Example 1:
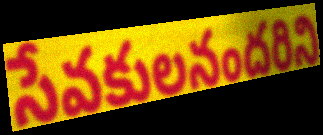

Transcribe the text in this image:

సేవకులనందరిని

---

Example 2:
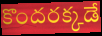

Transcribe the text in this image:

కొందరక్కడే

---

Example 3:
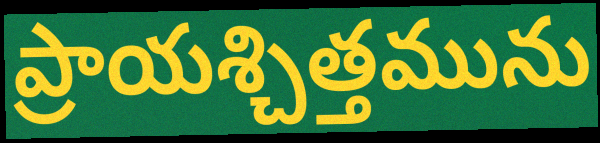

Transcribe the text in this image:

ప్రాయశ్చిత్తమును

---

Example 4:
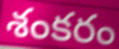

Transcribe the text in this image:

శంకరం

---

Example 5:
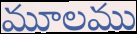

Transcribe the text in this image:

మూలము